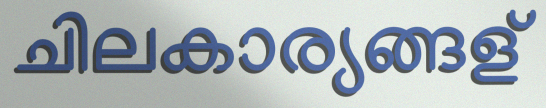
ചിലകാര്യങ്ങള്